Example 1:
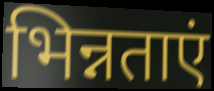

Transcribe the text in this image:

भिन्नताएं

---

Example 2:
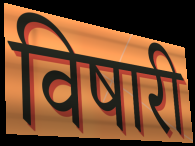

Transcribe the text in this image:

विषारी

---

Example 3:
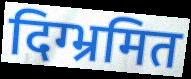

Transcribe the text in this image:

दिग्भ्रमित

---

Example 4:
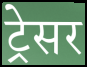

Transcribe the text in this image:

ट्रेसर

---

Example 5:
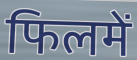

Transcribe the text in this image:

फिलमें